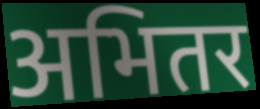
अभितर